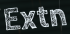
Extn